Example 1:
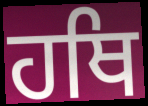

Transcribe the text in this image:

ਹਥਿ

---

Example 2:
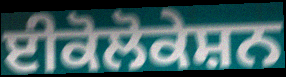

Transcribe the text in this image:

ਈਕੋਲੋਕੇਸ਼ਨ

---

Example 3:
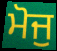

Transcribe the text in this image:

ਮੋਜੁ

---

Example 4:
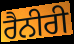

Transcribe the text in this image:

ਰੈਨੀਰੀ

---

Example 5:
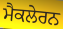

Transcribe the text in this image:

ਮੈਕਲੇਰਨ